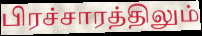
பிரச்சாரத்திலும்